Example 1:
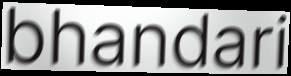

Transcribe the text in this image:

bhandari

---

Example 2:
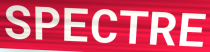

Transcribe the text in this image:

SPECTRE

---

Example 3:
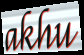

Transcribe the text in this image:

akhu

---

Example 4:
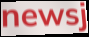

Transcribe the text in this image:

newsj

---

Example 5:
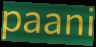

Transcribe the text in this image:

paani